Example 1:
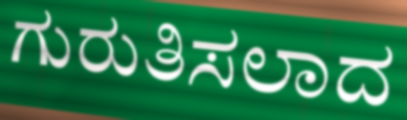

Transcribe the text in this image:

ಗುರುತಿಸಲಾದ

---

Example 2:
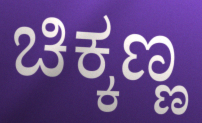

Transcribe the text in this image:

ಚಿಕ್ಕಣ್ಣ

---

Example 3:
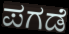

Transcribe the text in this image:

ಪಗಡೆ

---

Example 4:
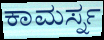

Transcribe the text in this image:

ಕಾಮರ್ಸ್ನ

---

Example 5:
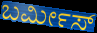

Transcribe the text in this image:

ಬರ್ಮೀಸ್